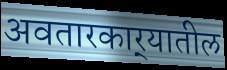
अवतारकार्यातील